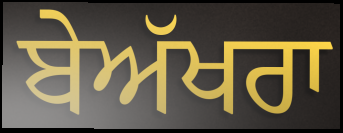
ਬੇਅੱਖਰਾ